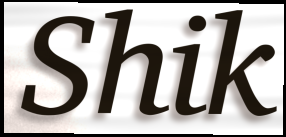
Shik